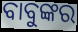
ବାବୁଙ୍କର